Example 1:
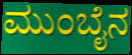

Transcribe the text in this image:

ಮುಂಬೈನ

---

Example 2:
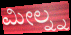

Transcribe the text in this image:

ಮೀಲ್ನ್ನ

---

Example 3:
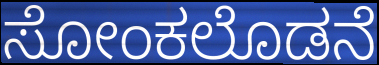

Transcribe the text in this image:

ಸೋಂಕಲೊಡನೆ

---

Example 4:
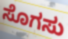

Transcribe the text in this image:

ಸೊಗಸು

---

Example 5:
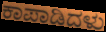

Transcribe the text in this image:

ಕಾಪಾಡಿದಳು